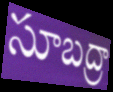
సూబద్రా